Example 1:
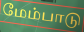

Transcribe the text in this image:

மேம்பாடு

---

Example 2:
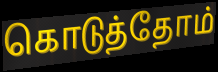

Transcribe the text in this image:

கொடுத்தோம்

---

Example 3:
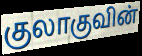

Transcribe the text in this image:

குலாகுவின்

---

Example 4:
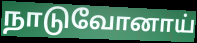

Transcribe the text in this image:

நாடுவோனாய்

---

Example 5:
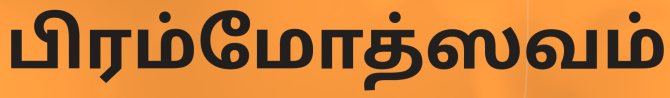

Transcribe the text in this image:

பிரம்மோத்ஸவம்